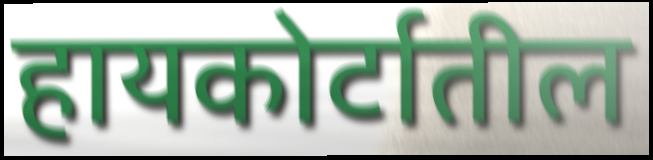
हायकोर्टातील